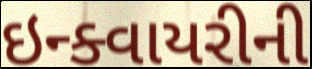
ઇન્ક્વાયરીની